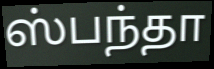
ஸ்பந்தா